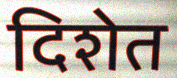
दिशेत